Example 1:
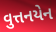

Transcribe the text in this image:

વુત્તનયેન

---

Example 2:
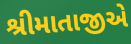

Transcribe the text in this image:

શ્રીમાતાજીએ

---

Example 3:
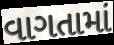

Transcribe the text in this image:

વાગતામાં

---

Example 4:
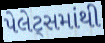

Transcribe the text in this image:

પેલેટ્સમાંથી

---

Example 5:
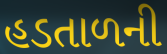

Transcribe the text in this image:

હડતાળની